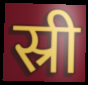
स्री